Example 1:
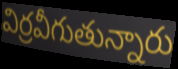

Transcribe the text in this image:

విర్రవీగుతున్నారు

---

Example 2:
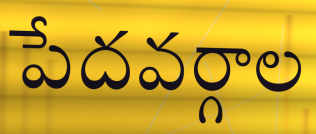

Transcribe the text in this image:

పేదవర్గాల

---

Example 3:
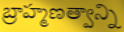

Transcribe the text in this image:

బ్రాహ్మణత్వాన్ని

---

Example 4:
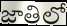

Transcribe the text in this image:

జాతిలో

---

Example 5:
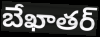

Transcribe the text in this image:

బేఖాతర్